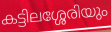
കട്ടിലശ്ശേരിയും